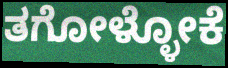
ತಗೋಳ್ಳೋಕೆ